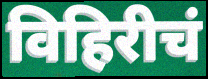
विहिरीचं